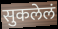
सुकलेलं